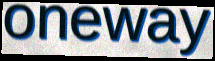
oneway